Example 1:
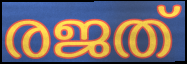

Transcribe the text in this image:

രജത്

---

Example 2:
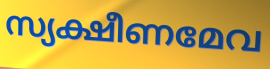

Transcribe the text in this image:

സ്യക്ഷീണമേവ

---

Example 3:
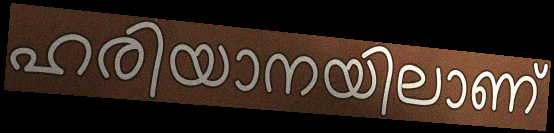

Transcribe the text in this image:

ഹരിയാനയിലാണ്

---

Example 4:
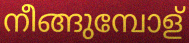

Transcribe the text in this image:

നീങ്ങുമ്പോള്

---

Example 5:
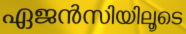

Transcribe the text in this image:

ഏജൻസിയിലൂടെ